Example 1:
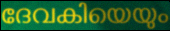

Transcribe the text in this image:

ദേവകിയെയും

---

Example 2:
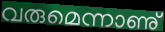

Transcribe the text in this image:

വരുമെന്നാണു്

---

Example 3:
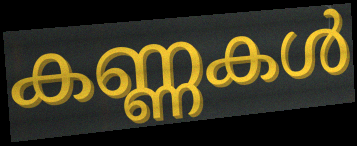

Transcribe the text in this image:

കണ്ണകൾ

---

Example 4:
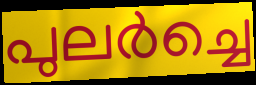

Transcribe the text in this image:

പുലർച്ചെ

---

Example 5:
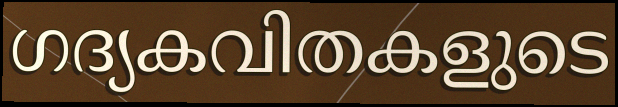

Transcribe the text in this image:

ഗദ്യകവിതകളുടെ